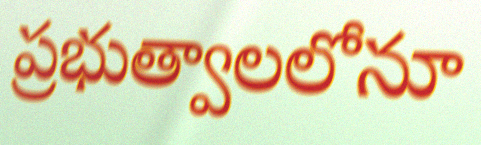
ప్రభుత్వాలలోనూ